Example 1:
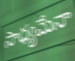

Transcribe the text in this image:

సాధ్యమేనా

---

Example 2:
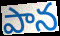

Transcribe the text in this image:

పాన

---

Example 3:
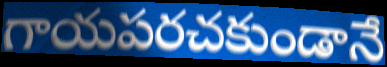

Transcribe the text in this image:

గాయపరచకుండానే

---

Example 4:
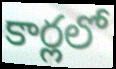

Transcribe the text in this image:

కార్లలో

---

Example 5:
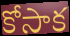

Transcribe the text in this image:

కోసాక